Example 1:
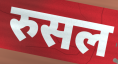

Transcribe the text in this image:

रुसल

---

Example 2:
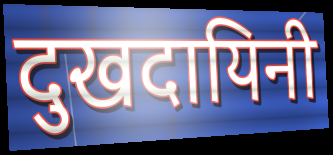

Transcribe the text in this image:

दुखदायिनी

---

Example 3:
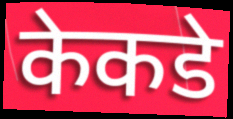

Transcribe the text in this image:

केकडे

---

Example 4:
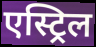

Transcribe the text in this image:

एस्ट्रिल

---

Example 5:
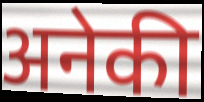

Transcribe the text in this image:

अनेकी